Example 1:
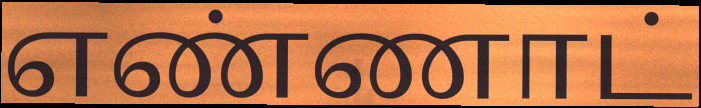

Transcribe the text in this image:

எண்ணாட்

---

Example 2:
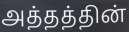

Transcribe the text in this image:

அத்தத்தின்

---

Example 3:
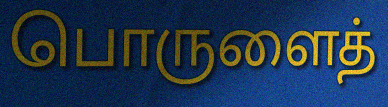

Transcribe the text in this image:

பொருளைத்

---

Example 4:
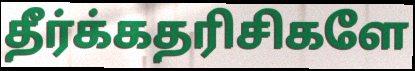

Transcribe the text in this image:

தீர்க்கதரிசிகளே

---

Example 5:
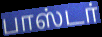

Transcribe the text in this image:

பாஸ்டர்